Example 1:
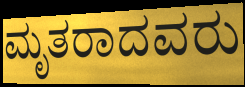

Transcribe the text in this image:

ಮೃತರಾದವರು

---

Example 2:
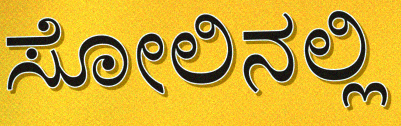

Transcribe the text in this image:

ಸೋಲಿನಲ್ಲಿ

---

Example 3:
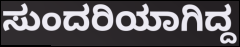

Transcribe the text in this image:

ಸುಂದರಿಯಾಗಿದ್ದ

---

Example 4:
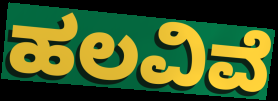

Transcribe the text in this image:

ಹಲವಿವೆ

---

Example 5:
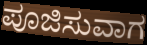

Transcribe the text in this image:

ಪೂಜಿಸುವಾಗ